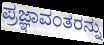
ಪ್ರಜ್ಞಾವಂತರನ್ನು